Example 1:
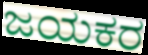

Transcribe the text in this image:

ಜಯಕರ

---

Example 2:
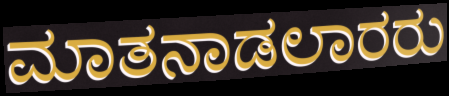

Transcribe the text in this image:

ಮಾತನಾಡಲಾರರು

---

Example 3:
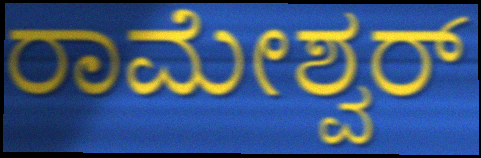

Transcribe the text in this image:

ರಾಮೇಶ್ವರ್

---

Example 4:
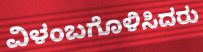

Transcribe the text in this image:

ವಿಳಂಬಗೊಳಿಸಿದರು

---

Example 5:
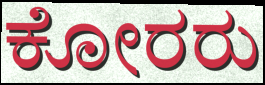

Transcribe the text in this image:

ಕೋರರು